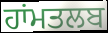
ਹਾਂਮਤਲਬ